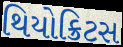
થિયોક્રિટસ